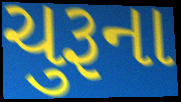
ચુરૂના